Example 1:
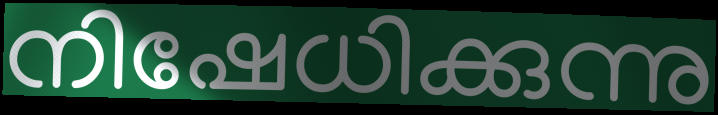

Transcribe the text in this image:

നിഷേധിക്കുന്നു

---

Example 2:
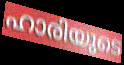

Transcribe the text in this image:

ഹാരിയുടെ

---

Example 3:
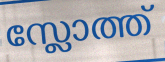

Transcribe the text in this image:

സ്ലോത്ത്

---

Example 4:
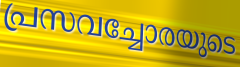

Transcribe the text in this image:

പ്രസവച്ചോരയുടെ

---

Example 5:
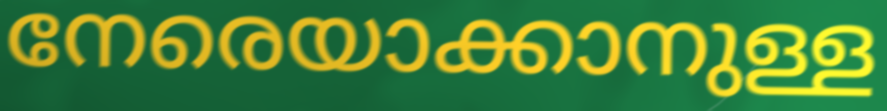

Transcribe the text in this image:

നേരെയാക്കാനുള്ള